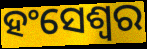
ହଂସେଶ୍ୱର